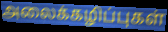
அலைக்கழிப்புகள்